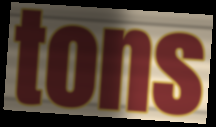
tons